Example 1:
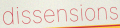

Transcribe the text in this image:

dissensions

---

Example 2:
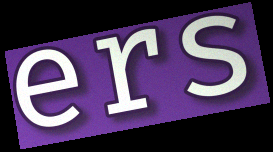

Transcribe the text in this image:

ers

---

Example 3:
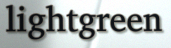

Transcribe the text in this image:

lightgreen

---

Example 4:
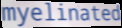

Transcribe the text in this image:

myelinated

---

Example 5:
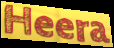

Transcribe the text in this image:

Heera